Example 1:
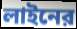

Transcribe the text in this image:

লাইনের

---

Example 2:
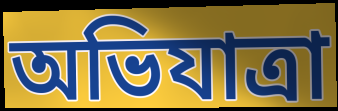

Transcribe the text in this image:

অভিযাত্রা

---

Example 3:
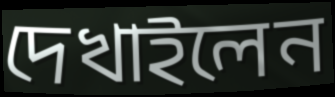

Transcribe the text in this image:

দেখাইলেন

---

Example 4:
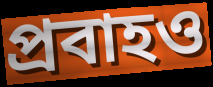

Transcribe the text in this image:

প্রবাহও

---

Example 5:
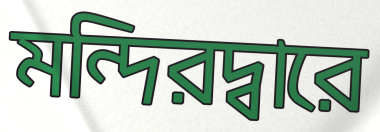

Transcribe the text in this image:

মন্দিরদ্বারে